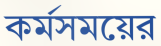
কর্মসময়ের